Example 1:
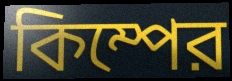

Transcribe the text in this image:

কিম্পের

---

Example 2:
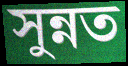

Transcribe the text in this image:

সুন্নত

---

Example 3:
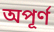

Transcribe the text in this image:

অপূর্ণ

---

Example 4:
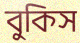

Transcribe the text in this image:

বুকিস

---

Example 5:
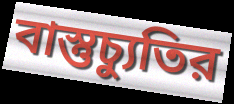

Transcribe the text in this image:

বাস্তুচ্যুতির